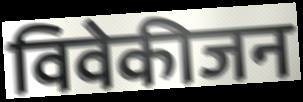
विवेकीजन